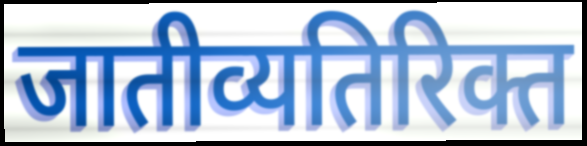
जातीव्यतिरिक्त